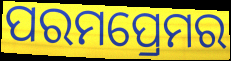
ପରମପ୍ରେମର